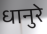
धानुरे